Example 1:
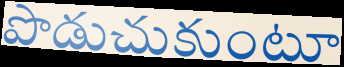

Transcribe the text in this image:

పొడుచుకుంటూ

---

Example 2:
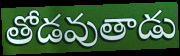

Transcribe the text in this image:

తోడవుతాడు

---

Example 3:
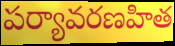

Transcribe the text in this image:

పర్యావరణహిత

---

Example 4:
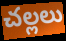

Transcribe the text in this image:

చల్లలు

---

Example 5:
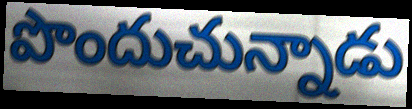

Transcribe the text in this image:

పొందుచున్నాడు